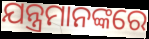
ଯନ୍ତ୍ରମାନଙ୍କରେ